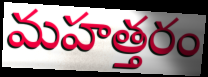
మహత్తరం